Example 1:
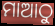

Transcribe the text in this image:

ମାଆଠୁ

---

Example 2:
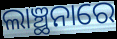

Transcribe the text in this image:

ଲାଞ୍ଛନାରେ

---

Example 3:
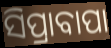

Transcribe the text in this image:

ସିପ୍ରାବାପା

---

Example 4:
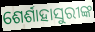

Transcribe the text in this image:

ଶେର୍ଶାହାସୁରୀଙ୍କ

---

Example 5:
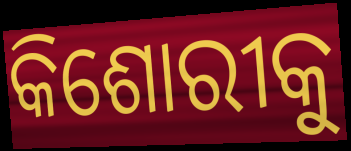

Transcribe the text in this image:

କିଶୋରୀକୁ